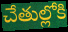
చేతుల్లోకి